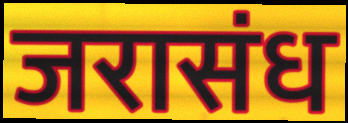
जरासंध